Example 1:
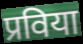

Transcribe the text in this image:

प्रविया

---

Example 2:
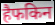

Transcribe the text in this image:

हैफकिन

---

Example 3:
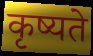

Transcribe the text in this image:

कृष्यते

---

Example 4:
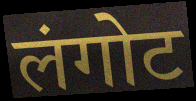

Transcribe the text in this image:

लंगोट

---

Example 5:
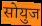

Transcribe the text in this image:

सोयुज